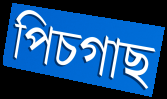
পিচগাছ